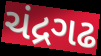
ચંદ્રગઢ